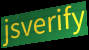
jsverify